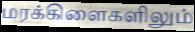
மரக்கிளைகளிலும்